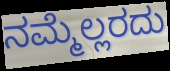
ನಮ್ಮೆಲ್ಲರದು